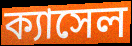
ক্যাসেল